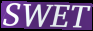
SWET